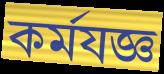
কর্মযজ্ঞ